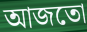
আজতো